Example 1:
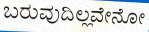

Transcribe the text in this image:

ಬರುವುದಿಲ್ಲವೇನೋ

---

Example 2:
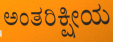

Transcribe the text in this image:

ಅಂತರಿಕ್ಷೀಯ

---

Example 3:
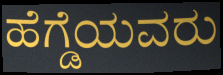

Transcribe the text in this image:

ಹೆಗ್ಡೆಯವರು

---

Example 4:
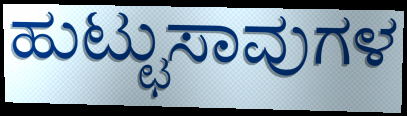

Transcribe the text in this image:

ಹುಟ್ಟುಸಾವುಗಳ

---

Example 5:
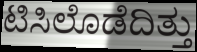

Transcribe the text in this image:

ಟಿಸಿಲೊಡೆದಿತ್ತು